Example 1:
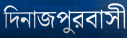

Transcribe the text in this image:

দিনাজপুরবাসী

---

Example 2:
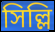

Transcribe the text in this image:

সিল্লি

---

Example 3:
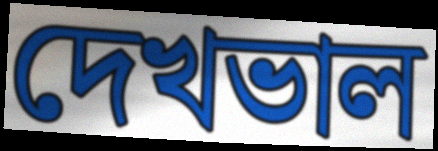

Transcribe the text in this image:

দেখভাল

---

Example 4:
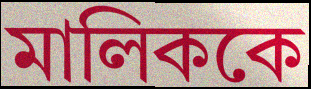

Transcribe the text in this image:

মালিককে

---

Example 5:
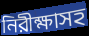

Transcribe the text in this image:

নিরীক্ষাসহ